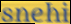
snehi